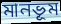
মানভূম